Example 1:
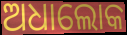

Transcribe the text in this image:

ଅଧାଲୋକ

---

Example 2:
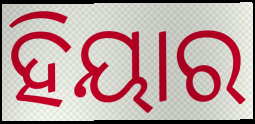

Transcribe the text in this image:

ହିୟାର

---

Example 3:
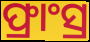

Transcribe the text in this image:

ଫ୍ରାଂସ୍ର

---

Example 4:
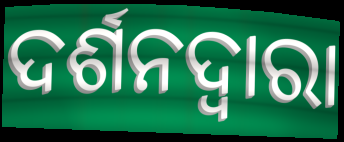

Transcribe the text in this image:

ଦର୍ଶନଦ୍ୱାରା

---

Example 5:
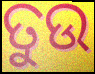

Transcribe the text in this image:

ତୁଉ